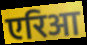
एरिआ